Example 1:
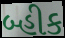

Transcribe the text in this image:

બ્હીક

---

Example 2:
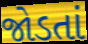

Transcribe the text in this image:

જોડતાં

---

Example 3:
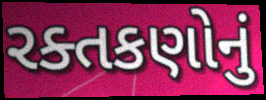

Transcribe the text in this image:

રક્તકણોનું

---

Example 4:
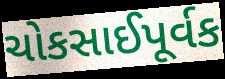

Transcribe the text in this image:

ચોકસાઈપૂર્વક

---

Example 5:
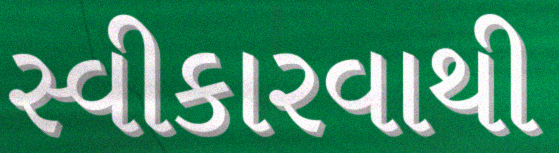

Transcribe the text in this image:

સ્વીકારવાથી